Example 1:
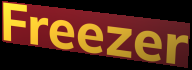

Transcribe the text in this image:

Freezer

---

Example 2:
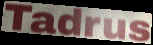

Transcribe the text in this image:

Tadrus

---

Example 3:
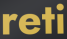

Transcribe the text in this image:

reti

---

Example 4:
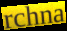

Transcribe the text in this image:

rchna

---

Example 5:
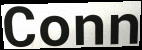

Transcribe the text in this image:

Conn